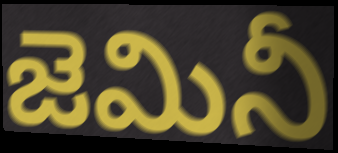
జెమినీ